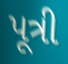
પૂત્રી